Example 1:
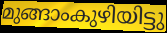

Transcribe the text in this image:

മുങ്ങാംകുഴിയിട്ടു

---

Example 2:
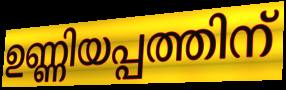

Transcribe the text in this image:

ഉണ്ണിയപ്പത്തിന്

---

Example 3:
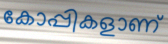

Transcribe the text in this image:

കോപ്പികളാണ്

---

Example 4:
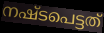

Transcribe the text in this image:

നഷ്ടപെട്ടത്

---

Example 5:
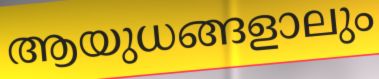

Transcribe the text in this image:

ആയുധങ്ങളാലും